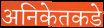
अनिकेतकडे